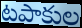
టపాకుల